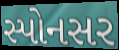
સ્પોનસર